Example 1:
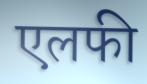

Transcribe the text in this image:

एलफी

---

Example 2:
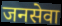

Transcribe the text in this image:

जनसेवा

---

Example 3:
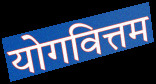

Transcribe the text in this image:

योगवित्तम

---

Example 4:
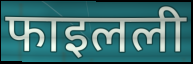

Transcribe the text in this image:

फाइलली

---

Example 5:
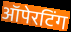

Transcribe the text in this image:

ऑपेरटिंग